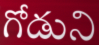
గోడుని